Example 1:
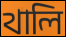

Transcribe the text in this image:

থালি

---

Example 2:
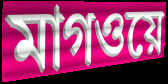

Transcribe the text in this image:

মাগওয়ে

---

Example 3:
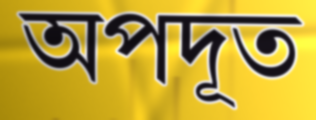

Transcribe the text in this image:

অপদূত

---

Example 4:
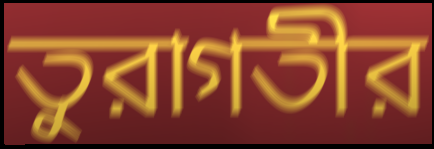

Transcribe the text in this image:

তুরাগতীর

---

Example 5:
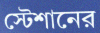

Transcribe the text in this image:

স্টেশানের